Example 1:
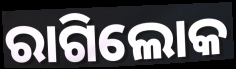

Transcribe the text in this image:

ରାଗିଲୋକ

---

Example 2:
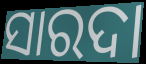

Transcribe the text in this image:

ସାରଦା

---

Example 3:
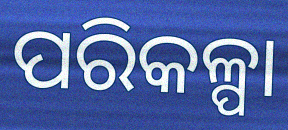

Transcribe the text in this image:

ପରିକଳ୍ପା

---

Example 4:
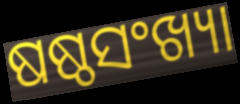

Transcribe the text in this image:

ଷଷ୍ଠସଂଖ୍ୟା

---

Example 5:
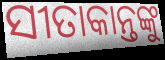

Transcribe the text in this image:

ସୀତାକାନ୍ତଙ୍କୁ